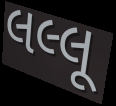
લલ્લૂ